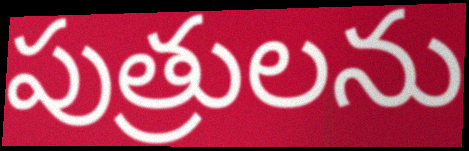
పుత్రులను